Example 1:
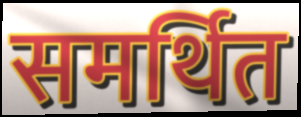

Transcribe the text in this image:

समर्थित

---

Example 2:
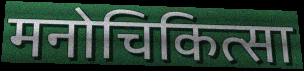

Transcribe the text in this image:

मनोचिकित्सा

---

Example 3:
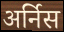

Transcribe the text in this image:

अर्निस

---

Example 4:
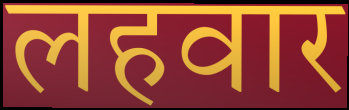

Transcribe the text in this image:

लहवार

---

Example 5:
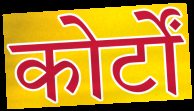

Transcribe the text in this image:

कोर्टों